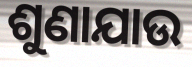
ଶୁଣାଯାଉ